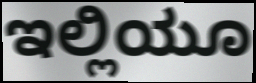
ಇಲ್ಲಿಯೂ